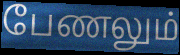
பேணலும்